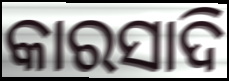
କାରସାଦି